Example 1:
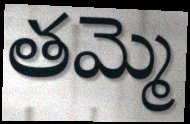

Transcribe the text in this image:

తమ్మె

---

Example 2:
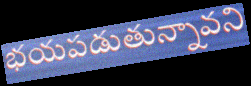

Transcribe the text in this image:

భయపడుతున్నావని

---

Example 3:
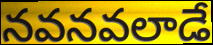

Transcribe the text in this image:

నవనవలాడే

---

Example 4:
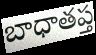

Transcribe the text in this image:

బాధాతప్త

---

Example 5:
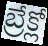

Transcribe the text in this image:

బ్రేక్లో